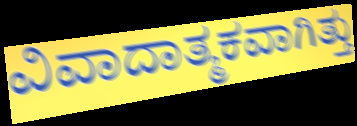
ವಿವಾದಾತ್ಮಕವಾಗಿತ್ತು